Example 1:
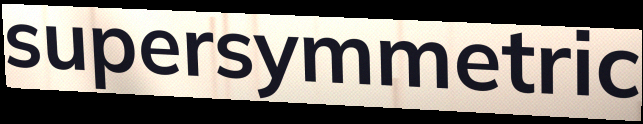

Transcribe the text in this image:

supersymmetric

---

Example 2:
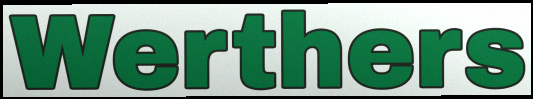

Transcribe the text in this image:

Werthers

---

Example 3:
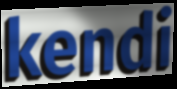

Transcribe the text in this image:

kendi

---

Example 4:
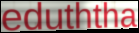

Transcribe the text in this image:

eduththa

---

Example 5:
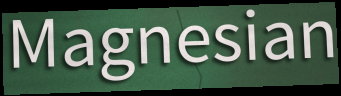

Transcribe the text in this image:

Magnesian